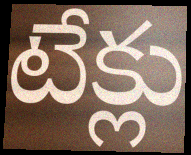
టేక్లు